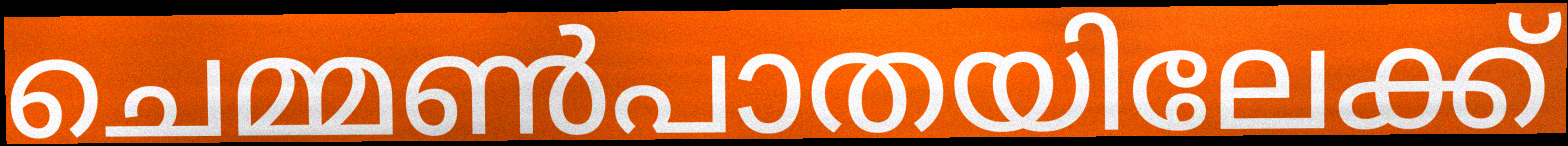
ചെമ്മൺപാതയിലേക്ക്